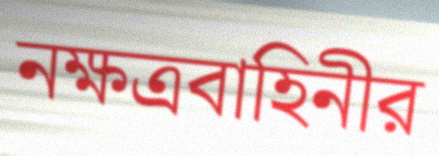
নক্ষত্রবাহিনীর